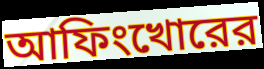
আফিংখোরের